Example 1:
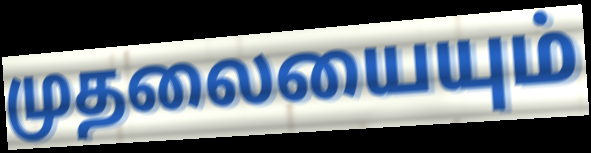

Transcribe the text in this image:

முதலையையும்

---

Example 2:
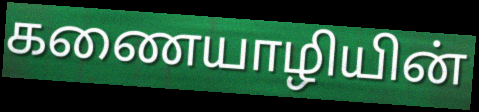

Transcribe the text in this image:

கணையாழியின்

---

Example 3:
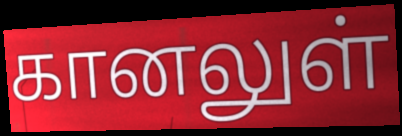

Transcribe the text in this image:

கானலுள்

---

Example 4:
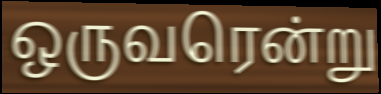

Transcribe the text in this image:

ஒருவரென்று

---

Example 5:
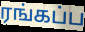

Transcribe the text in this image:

ரங்கப்ப